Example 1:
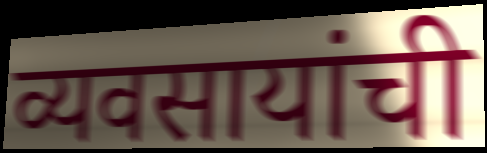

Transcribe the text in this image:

व्यवसायांची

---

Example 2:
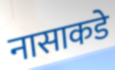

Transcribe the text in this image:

नासाकडे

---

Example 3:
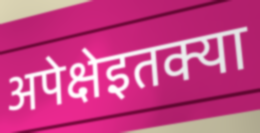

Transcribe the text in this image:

अपेक्षेइतक्या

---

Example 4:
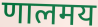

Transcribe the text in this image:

णालमय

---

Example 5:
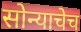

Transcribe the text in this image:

सोन्याचेच